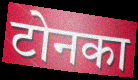
टोनका